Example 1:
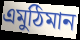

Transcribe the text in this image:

এমুঠিমান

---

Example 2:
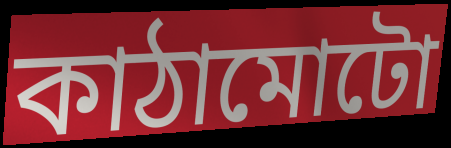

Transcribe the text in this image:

কাঠামোটো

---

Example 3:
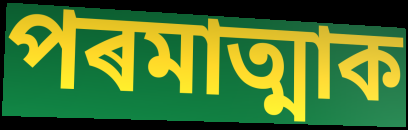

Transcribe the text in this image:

পৰমাত্মাক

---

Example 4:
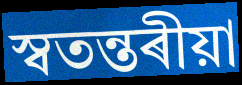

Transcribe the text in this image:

স্বতন্তৰীয়া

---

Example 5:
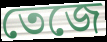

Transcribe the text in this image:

তেজে